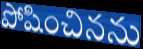
పోషించినను